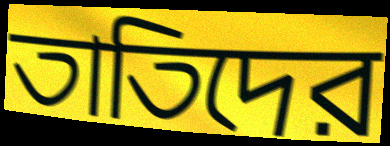
তাতিদের